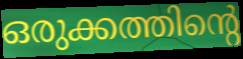
ഒരുക്കത്തിന്റെ